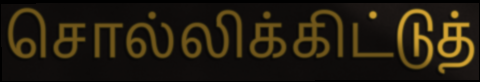
சொல்லிக்கிட்டுத்